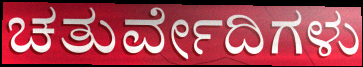
ಚತುರ್ವೇದಿಗಳು